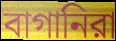
বাগানিরা